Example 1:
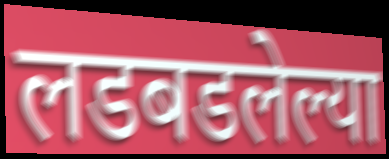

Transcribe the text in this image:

लडबडलेल्या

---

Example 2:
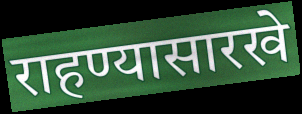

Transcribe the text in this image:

राहण्यासारखे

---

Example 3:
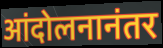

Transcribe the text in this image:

आंदोलनानंतर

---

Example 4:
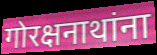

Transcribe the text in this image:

गोरक्षनाथांना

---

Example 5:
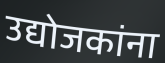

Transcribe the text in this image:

उद्योजकांना